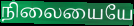
நிலையையே